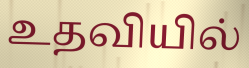
உதவியில்